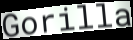
Gorilla